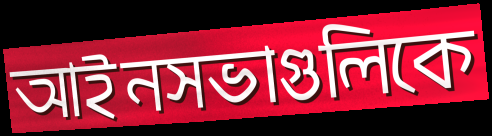
আইনসভাগুলিকে